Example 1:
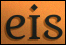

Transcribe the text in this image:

eis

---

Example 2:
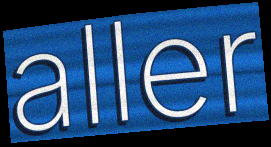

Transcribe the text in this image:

aller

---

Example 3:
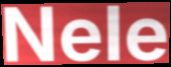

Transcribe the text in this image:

Nele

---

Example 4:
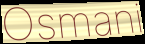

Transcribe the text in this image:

Osmani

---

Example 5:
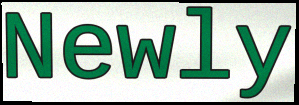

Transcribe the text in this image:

Newly